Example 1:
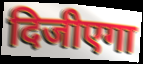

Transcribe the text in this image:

दिजीएगा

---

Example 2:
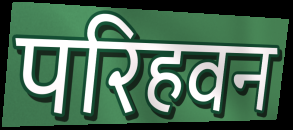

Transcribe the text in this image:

परिहवन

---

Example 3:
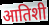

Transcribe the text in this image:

आतिशी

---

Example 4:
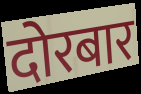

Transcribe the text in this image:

दोरबार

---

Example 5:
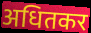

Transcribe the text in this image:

अधितकर